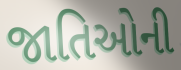
જાતિઓની